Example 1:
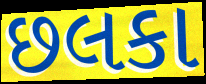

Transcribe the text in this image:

છલકા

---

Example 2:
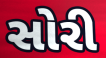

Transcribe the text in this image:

સોરી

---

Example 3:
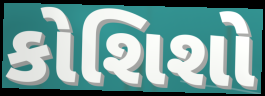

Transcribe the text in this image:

કોશિશો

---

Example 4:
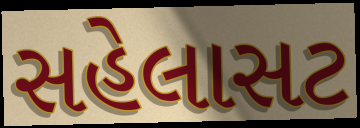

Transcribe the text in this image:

સહેલાસટ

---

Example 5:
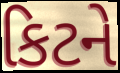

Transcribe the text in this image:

કિટને